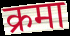
क्रमा